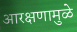
आरक्षणामुळे